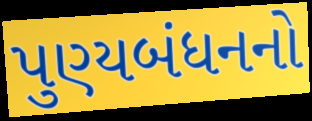
પુણ્યબંધનનો